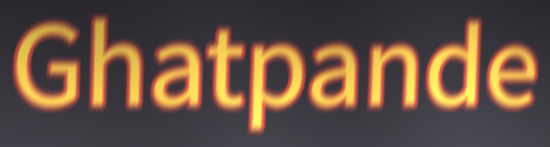
Ghatpande